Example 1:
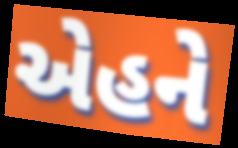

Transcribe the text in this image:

એહને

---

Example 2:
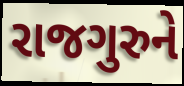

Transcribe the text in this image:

રાજગુરુને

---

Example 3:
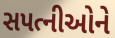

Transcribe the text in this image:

સપત્નીઓને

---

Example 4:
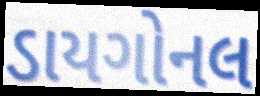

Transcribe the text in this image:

ડાયગોનલ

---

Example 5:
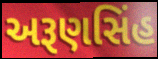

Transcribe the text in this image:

અરૂણસિંહ